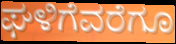
ಘಳಿಗೆವರೆಗೂ